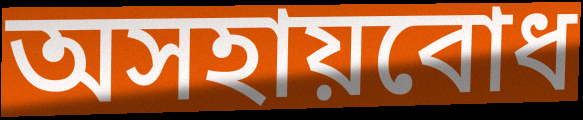
অসহায়বোধ